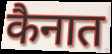
कैनात